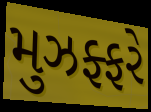
મુઝફ્ફરે